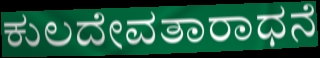
ಕುಲದೇವತಾರಾಧನೆ